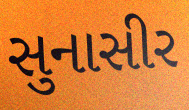
સુનાસીર